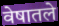
वेषातले